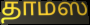
தாமஸ